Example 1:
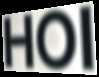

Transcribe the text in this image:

HOI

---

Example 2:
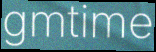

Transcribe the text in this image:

gmtime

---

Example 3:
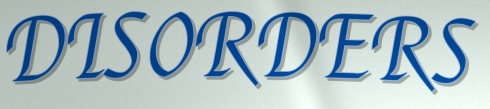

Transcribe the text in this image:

DISORDERS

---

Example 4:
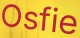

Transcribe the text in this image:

Osfie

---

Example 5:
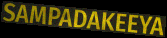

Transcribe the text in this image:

SAMPADAKEEYA